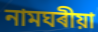
নামঘৰীয়া